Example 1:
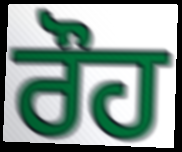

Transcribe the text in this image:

ਰੌਹ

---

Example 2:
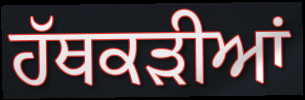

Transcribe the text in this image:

ਹੱਥਕੜੀਆਂ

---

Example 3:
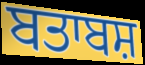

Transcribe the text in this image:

ਬਤਾਬਸ਼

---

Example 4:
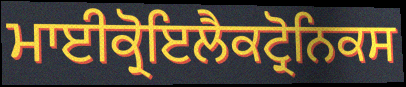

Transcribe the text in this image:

ਮਾਈਕ੍ਰੋਇਲੈਕਟ੍ਰੋਨਿਕਸ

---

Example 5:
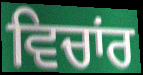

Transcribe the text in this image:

ਵਿਚਾਂਰ